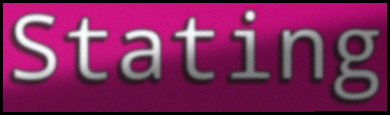
Stating